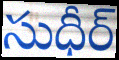
సుధీర్